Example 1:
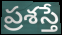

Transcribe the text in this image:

ప్రశస్తే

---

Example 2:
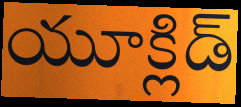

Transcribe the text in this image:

యూక్లిడ్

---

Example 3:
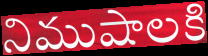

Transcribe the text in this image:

నిముషాలకి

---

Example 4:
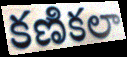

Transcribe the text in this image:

కణికలా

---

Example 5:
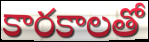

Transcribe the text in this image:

కారకాలతో